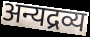
अन्यद्रव्य